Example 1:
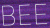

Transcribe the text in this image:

BEE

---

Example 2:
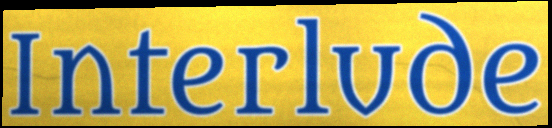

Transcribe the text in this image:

Interlude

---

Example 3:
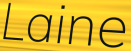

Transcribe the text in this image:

Laine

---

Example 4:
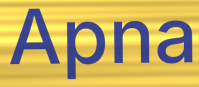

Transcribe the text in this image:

Apna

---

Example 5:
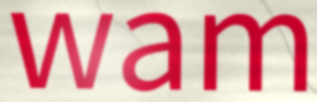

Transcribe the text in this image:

wam